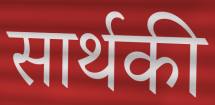
सार्थकी